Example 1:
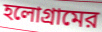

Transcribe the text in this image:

হলোগ্রামের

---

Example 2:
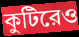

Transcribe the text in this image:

কুটিরেও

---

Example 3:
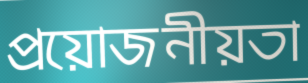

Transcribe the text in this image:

প্রয়োজনীয়তা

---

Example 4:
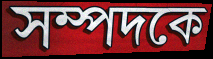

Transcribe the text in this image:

সম্পদকে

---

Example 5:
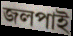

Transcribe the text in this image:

জলপাই